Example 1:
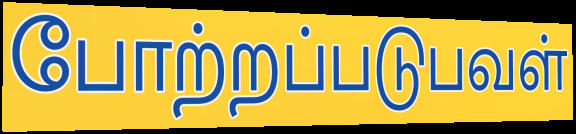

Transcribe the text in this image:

போற்றப்படுபவள்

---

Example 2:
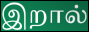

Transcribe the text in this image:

இறால்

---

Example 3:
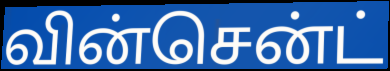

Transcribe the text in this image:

வின்சென்ட்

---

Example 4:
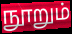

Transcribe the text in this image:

நூறும்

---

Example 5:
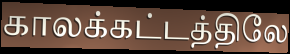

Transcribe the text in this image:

காலக்கட்டத்திலே